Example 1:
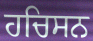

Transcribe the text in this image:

ਹਚਿਸਨ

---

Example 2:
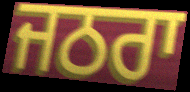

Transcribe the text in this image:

ਜਠਰਾ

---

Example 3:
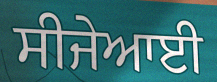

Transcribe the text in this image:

ਸੀਜੇਆਈ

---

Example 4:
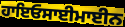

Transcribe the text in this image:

ਹਾਇਓਸਾਈਮਾਈਨ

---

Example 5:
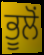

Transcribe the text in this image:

ਭੂਲੋਂ